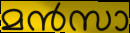
മൻസാ